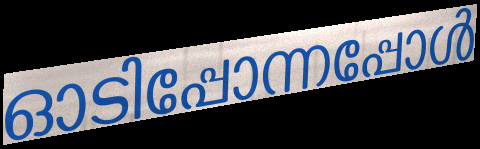
ഓടിപ്പോന്നപ്പോൾ